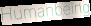
Humanbeing